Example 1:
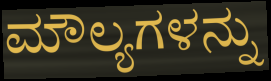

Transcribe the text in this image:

ಮೌಲ್ಯಗಳನ್ನು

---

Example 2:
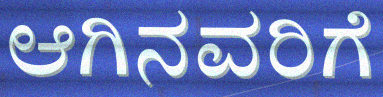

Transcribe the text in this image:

ಆಗಿನವರಿಗೆ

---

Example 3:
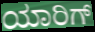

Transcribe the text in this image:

ಯಾರಿಗ್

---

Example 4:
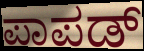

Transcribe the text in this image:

ಪಾಪಡ್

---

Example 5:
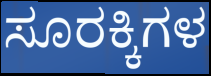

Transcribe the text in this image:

ಸೂರಕ್ಕಿಗಳ